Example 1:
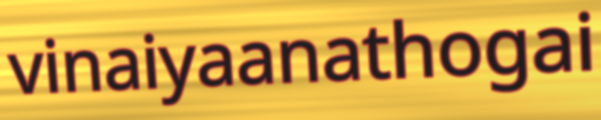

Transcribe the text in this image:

vinaiyaanathogai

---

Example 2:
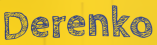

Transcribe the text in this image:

Derenko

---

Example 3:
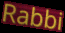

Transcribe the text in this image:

Rabbi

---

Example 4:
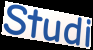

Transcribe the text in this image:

Studi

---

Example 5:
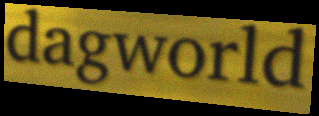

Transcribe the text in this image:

dagworld